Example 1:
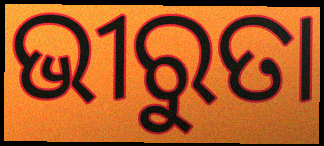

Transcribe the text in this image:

ଭୀରୁତା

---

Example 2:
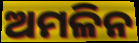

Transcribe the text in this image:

ଅମଳିନ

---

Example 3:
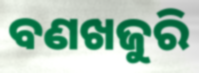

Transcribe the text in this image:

ବଣଖଜୁରି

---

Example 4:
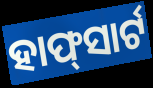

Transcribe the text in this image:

ହାଫ୍‍ସାର୍ଟ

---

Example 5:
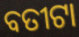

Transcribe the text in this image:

ବତୀଟା